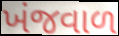
ખંજવાળ